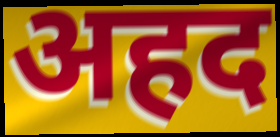
अहद